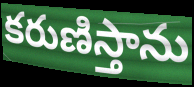
కరుణిస్తాను